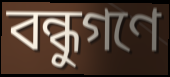
বন্ধুগণে